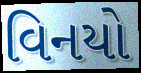
વિનયો